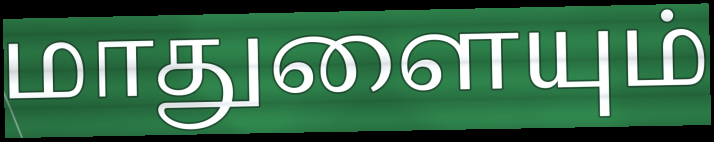
மாதுளையும்